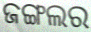
ଜଙ୍ଗଲର